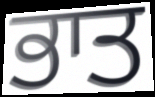
ਭਾਤ